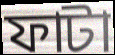
ফাটা